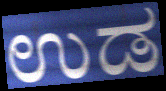
ಉಡ